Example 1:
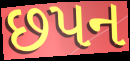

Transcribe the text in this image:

છપન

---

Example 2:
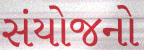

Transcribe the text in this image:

સંયોજનો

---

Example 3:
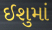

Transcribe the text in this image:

ઈશુમાં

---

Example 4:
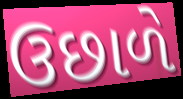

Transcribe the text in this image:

ઉછાળે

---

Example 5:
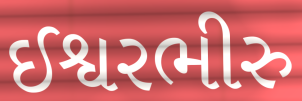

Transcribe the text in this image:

ઈશ્વરભીરુ